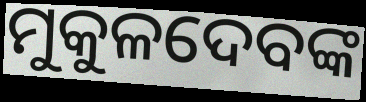
ମୁକୁଳଦେବଙ୍କ